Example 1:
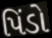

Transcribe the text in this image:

પિંડો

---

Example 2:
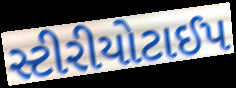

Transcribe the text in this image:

સ્ટીરીયોટાઈપ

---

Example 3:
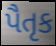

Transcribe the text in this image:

પૈતૃક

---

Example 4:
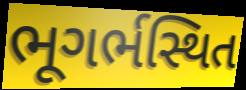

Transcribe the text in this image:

ભૂગર્ભસ્થિત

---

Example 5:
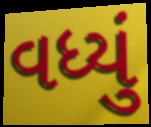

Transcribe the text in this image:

વધ્યું